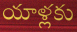
యాళ్లకు